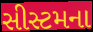
સીસ્ટમના